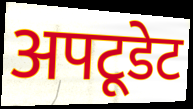
अपटूडेट